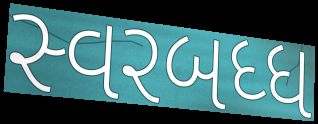
સ્વરબધ્ધ